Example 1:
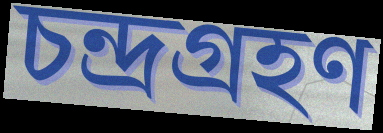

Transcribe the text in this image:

চন্দ্রগ্রহণ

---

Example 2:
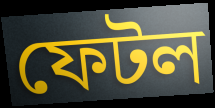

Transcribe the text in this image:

ফেটল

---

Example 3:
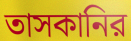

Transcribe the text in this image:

তাসকানির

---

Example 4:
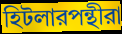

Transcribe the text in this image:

হিটলারপন্থীরা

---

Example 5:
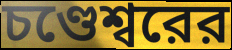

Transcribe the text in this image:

চণ্ডেশ্বরের